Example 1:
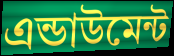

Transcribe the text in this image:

এন্ডাউমেন্ট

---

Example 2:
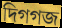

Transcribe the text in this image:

দিগগজ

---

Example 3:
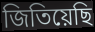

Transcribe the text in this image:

জিতিয়েছি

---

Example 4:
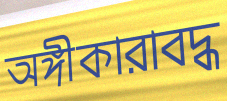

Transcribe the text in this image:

অঙ্গীকারাবদ্ধ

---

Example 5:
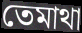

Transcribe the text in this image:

তেমাথা